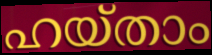
ഹയ്താം